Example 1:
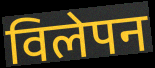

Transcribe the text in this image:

विलेपन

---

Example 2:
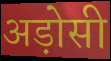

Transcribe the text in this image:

अड़ोसी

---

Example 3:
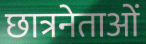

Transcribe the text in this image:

छात्रनेताओं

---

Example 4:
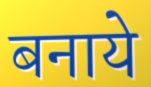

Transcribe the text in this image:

बनाये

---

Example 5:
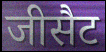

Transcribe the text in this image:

जीसैट